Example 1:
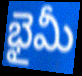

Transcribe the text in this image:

భైమీ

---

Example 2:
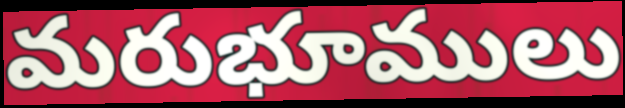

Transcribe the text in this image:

మరుభూములు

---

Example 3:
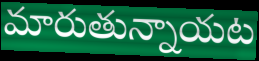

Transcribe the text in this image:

మారుతున్నాయట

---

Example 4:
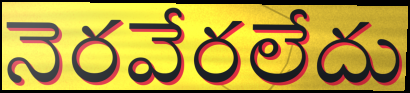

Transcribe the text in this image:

నెరవేరలేదు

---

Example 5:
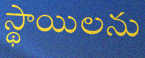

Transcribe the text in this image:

స్థాయిలను